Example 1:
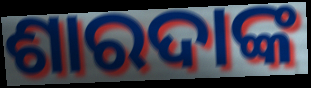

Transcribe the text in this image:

ଶାରଦାଙ୍କ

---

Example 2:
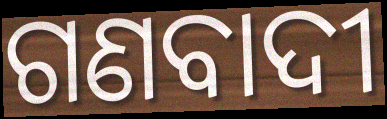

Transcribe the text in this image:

ଗଣବାଦୀ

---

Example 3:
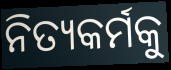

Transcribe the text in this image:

ନିତ୍ୟକର୍ମକୁ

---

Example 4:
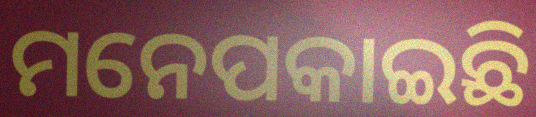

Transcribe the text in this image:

ମନେପକାଇଛି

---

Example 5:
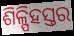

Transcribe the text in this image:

ଶିଳ୍ପିହସ୍ତର